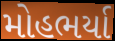
મોહભર્યા